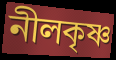
নীলকৃষ্ণ